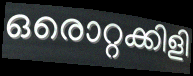
ഒരൊറ്റക്കിളി